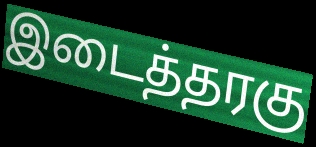
இடைத்தரகு